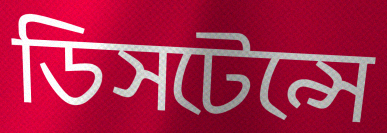
ডিসটেন্সে